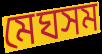
মেঘসম